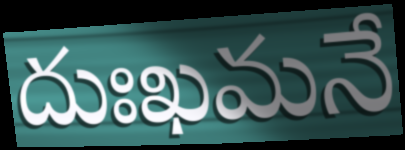
దుఃఖమనే